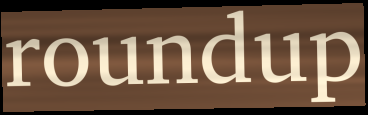
roundup